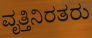
ವೃತ್ತಿನಿರತರು